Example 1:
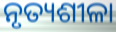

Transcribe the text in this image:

ନୃତ୍ୟଶୀଳା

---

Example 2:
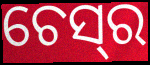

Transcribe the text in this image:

ଚେସ୍‌ର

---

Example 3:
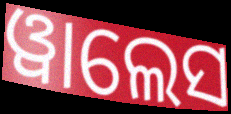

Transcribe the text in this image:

ୱାଲେସ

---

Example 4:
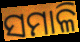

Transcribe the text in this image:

ସମାଳି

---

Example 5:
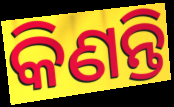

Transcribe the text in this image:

କିଣନ୍ତି